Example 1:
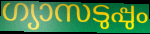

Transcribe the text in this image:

ഗ്യാസടുപ്പും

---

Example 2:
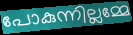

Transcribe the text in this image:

പോകുന്നില്ലമ്മേ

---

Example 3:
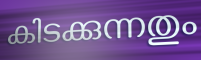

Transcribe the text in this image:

കിടക്കുന്നതും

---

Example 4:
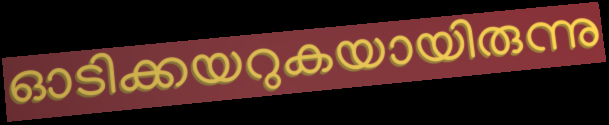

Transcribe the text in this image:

ഓടിക്കയറുകയായിരുന്നു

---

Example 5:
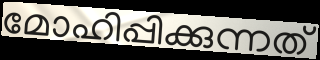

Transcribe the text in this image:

മോഹിപ്പിക്കുന്നത്